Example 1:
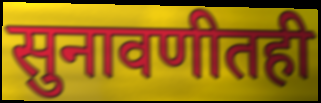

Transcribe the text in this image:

सुनावणीतही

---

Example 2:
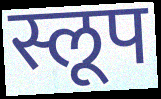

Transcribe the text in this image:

स्लूप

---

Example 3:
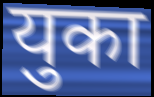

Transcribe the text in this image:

युका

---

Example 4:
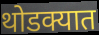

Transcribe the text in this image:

थोडक्यात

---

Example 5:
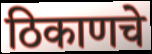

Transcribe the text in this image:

ठिकाणचे